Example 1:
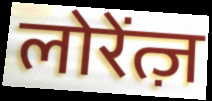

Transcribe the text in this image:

लोरेंत्ज़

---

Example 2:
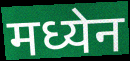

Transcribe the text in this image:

मध्येन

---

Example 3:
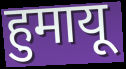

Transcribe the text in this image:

हुमायू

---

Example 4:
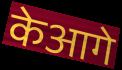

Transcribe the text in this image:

केआगे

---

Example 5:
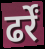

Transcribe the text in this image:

ढर्रें